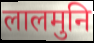
लालमुनि